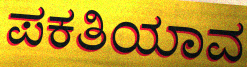
ಪಕತಿಯಾವ